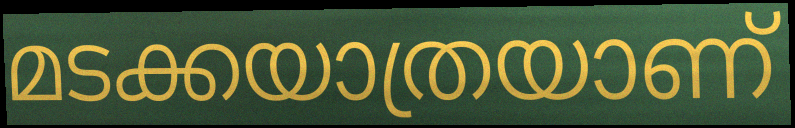
മടക്കയാത്രയാണ്